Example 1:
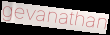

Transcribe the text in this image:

gevanathan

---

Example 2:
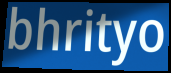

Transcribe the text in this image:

bhrityo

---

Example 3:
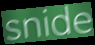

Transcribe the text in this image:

snide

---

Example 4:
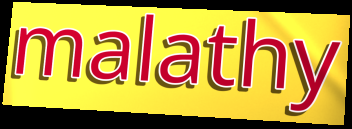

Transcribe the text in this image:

malathy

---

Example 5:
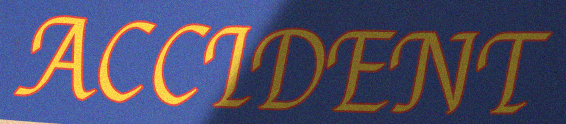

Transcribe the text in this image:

ACCIDENT